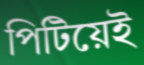
পিটিয়েই